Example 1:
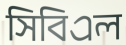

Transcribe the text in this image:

সিবিএল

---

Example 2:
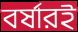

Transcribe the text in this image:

বর্ষারই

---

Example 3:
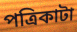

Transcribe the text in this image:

পত্রিকাটা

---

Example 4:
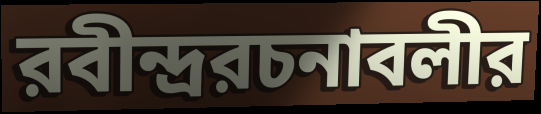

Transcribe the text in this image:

রবীন্দ্ররচনাবলীর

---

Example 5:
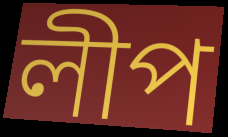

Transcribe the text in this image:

লীপ